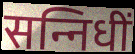
सन्निधीं